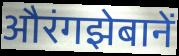
औरंगझेबानें